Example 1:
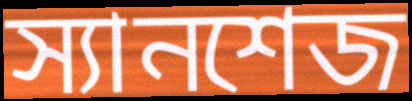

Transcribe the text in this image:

স্যানশেজ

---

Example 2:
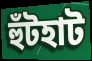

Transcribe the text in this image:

হুঁটহাট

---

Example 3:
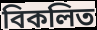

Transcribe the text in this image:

বিকলিত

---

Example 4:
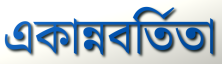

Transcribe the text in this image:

একান্নবর্তিতা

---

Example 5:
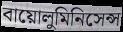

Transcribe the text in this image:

বায়োলুমিনিসেন্স